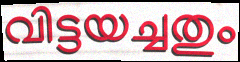
വിട്ടയച്ചതും